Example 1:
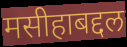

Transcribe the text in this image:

मसीहाबद्दल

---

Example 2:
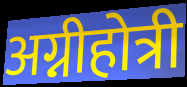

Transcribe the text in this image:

अग्नीहोत्री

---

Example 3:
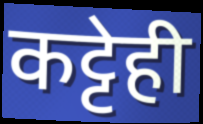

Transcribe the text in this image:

कट्टेही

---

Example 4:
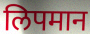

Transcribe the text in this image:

लिपमान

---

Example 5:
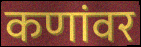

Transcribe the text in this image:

कणांवर